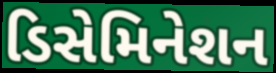
ડિસેમિનેશન